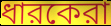
ধারকেরা